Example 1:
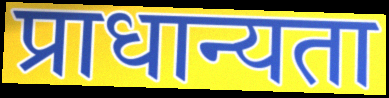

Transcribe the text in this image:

प्राधान्यता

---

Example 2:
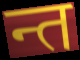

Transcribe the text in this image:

न्त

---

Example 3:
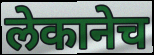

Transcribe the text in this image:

लेकानेच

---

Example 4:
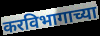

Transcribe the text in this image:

करविभागाच्या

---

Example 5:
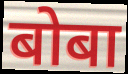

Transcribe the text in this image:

बोबा